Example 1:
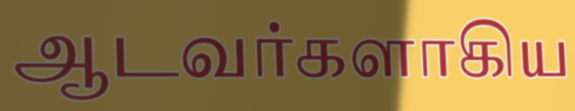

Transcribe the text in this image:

ஆடவர்களாகிய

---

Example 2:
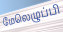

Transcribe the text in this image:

மேலெழுப்பி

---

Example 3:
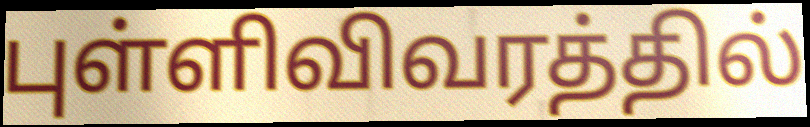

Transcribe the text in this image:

புள்ளிவிவரத்தில்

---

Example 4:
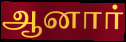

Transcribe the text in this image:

ஆனார்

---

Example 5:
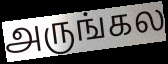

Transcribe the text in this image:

அருங்கல